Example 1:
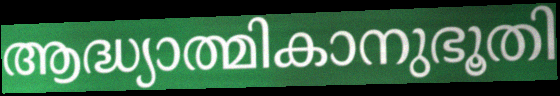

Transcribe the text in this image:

ആദ്ധ്യാത്മികാനുഭൂതി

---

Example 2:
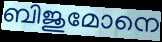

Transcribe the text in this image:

ബിജുമോനെ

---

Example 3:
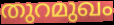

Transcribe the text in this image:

തുറമുഖം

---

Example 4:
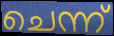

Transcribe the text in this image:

ചെന്ന്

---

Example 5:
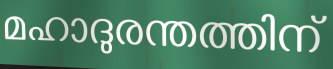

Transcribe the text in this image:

മഹാദുരന്തത്തിന്